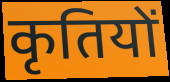
कृतियों